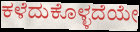
ಕಳೆದುಕೊಳ್ಳದೆಯೇ